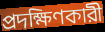
প্রদক্ষিণকারী